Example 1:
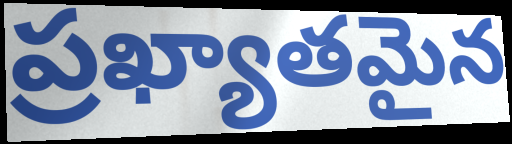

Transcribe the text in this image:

ప్రఖ్యాతమైన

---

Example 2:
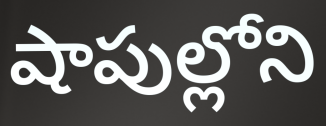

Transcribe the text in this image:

షాపుల్లోని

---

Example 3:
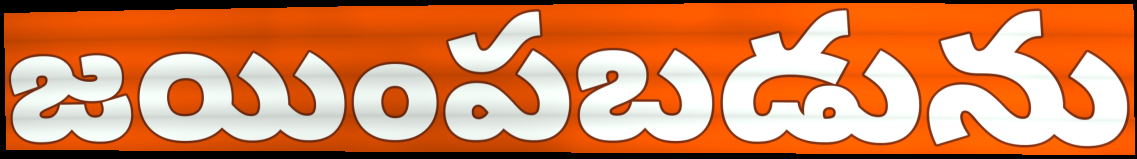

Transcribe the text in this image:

జయింపబడును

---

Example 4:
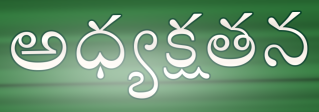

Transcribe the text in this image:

అధ్యక్షతన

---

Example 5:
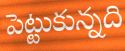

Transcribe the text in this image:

పెట్టుకున్నది